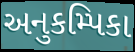
અનુકમ્પિકા